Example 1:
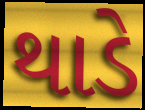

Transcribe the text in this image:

થાડે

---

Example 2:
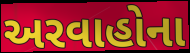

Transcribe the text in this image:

અરવાહોના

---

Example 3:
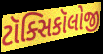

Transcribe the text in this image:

ટૉક્સિકૉલોજી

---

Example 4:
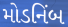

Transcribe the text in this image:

મોડનિંબ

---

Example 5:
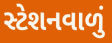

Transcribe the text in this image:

સ્ટેશનવાળું